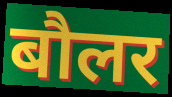
बौलर